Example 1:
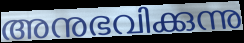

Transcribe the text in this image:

അനുഭവിക്കുന്നു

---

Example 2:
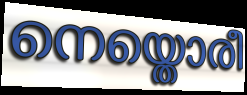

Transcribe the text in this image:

നെയ്തൊരീ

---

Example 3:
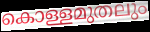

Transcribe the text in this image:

കൊള്ളമുതലും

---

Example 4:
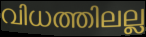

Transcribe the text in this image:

വിധത്തിലല്ല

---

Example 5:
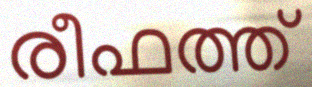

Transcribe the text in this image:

രീഫത്ത്